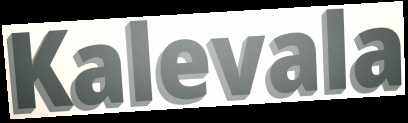
Kalevala